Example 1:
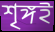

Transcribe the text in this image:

শৃঙ্গই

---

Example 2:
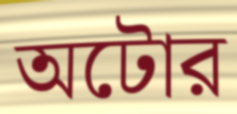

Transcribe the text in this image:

অটোর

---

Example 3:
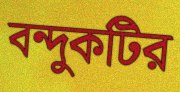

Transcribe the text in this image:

বন্দুকটির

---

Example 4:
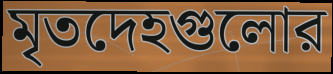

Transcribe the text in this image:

মৃতদেহগুলোর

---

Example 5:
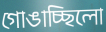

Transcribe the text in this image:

গোঙাচ্ছিলো